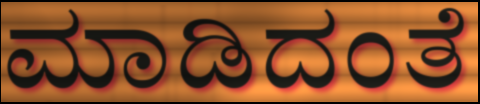
ಮಾಡಿದಂತೆ